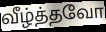
வீழ்த்தவோ